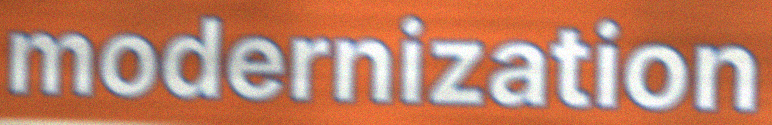
modernization